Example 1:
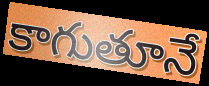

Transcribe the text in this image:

కాగుతూనే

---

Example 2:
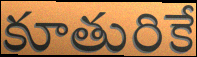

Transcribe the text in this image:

కూతురికే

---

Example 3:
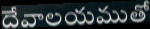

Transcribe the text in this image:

దేవాలయముతో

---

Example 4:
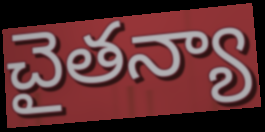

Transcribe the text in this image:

చైతన్యా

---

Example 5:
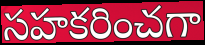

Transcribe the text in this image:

సహకరించగా